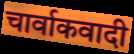
चार्वाकवादी